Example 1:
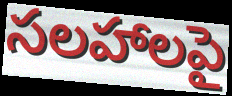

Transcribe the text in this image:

సలహాలపై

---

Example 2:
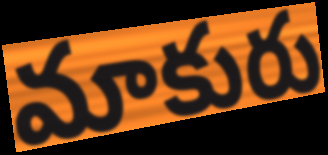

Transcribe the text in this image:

మాకురు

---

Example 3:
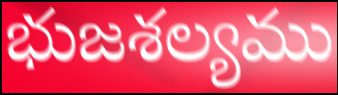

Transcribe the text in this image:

భుజశల్యము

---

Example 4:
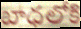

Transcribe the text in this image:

బాధలోకి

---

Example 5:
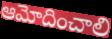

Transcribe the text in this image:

ఆమోదించాలి